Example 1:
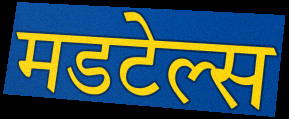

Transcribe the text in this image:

मडटेल्स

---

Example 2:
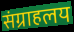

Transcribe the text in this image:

संग्राहलय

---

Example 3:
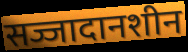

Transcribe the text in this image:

सज्जादानशीन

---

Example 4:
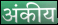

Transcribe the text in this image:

अंकीय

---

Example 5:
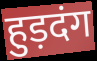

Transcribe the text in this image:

हुड़दंग